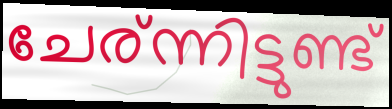
ചേര്ന്നിട്ടുണ്ട്